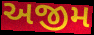
અજીમ